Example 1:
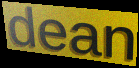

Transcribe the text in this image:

dean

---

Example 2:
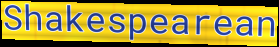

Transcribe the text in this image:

Shakespearean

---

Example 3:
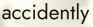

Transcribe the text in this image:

accidently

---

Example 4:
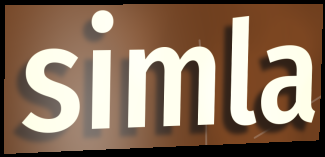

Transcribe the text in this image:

simla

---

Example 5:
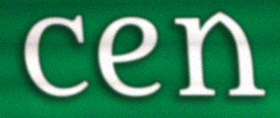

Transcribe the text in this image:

cen